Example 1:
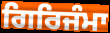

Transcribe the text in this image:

ਗਿਰਿਜੰਮਾ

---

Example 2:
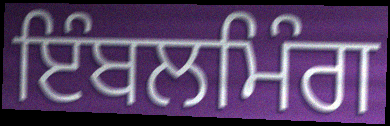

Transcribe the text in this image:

ਇੰਬਲਮਿੰਗ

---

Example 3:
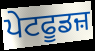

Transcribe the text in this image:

ਪੇਟਫੂਡਜ਼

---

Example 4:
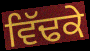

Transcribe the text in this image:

ਵਿੱਢਕੇ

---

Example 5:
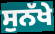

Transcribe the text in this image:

ਸੁਨੱਖੇ